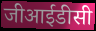
जीआईडीसी